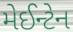
મેઈન્ટેન